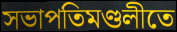
সভাপতিমণ্ডলীতে